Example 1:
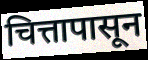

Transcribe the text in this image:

चित्तापासून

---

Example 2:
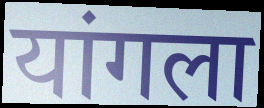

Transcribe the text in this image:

यांगला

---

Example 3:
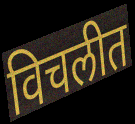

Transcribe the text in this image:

विचलीत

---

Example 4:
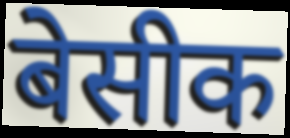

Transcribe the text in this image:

बेसीक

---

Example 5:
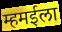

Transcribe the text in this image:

म्हमईला